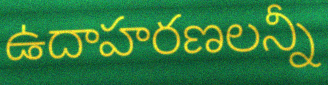
ఉదాహరణలన్నీ